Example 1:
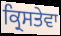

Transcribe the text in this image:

ਕ੍ਰਿਸਤੇਵਾ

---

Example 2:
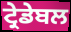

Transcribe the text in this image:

ਟ੍ਰੇਡੇਬਲ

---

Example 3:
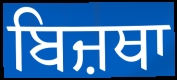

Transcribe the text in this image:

ਬਿਜ਼ਥਾ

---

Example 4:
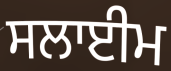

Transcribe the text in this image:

ਸਲਾਈਮ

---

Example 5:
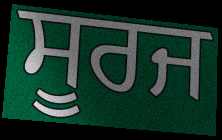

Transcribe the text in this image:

ਸੂਰਜ